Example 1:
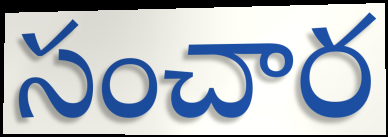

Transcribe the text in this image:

సంచార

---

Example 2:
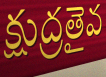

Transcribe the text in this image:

క్షుద్రతైవ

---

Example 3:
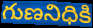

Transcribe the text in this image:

గుణనిధికి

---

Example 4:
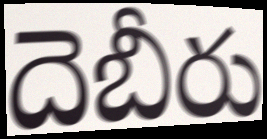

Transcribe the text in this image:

దెబీరు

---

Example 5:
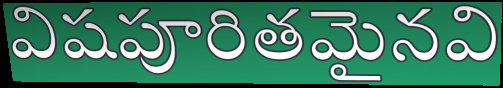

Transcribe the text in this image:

విషపూరితమైనవి